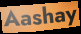
Aashay